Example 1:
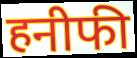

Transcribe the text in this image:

हनीफी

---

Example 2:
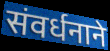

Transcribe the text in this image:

संवर्धनाने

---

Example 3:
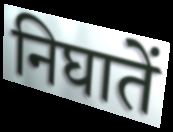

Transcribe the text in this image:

निघातें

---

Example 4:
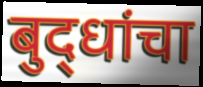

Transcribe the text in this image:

बुद्धांचा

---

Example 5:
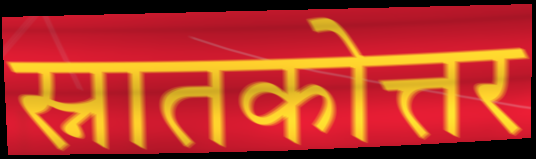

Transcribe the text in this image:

स्नातकोत्तर